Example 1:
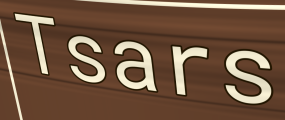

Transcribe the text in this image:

Tsars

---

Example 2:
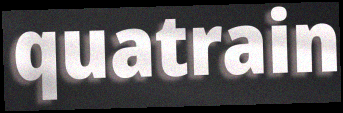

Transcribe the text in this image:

quatrain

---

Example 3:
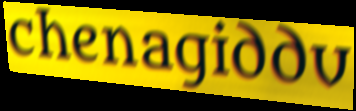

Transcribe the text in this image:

chenagiddu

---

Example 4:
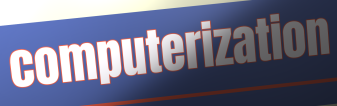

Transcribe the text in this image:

computerization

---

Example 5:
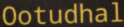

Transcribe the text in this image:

Ootudhal